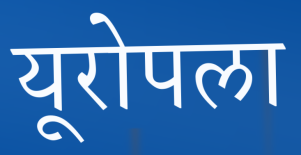
यूरोपला